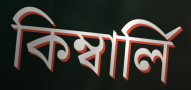
কিম্বার্লি